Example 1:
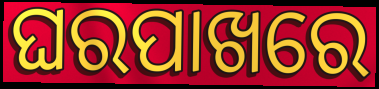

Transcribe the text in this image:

ଘରପାଖରେ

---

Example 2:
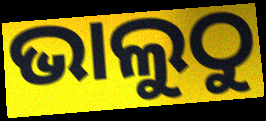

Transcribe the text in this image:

ଭାଲୁଠୁ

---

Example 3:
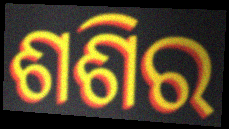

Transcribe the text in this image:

ଶଶିର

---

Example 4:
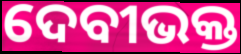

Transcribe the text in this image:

ଦେବୀଭକ୍ତ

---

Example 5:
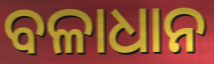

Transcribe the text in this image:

ବଳାଧାନ